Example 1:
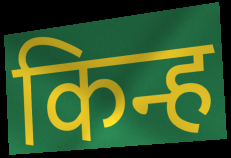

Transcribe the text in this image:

किन्ह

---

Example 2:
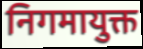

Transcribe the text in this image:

निगमायुक्त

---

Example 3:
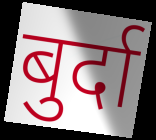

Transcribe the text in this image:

बुर्दा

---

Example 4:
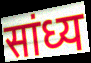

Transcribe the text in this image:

सांध्य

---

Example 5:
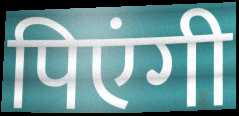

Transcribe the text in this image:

पिएंगी